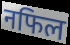
नफिल